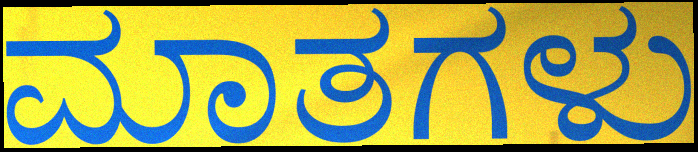
ಮಾತಗಳು